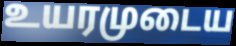
உயரமுடைய